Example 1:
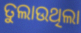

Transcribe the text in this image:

ତୁଲାଉଥିଲା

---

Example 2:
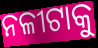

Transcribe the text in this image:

ନଳୀଟାକୁ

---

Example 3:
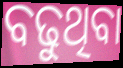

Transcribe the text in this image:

ବଢୁଥିବା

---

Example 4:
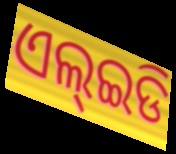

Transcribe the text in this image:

ଏଲ୍ଇଡି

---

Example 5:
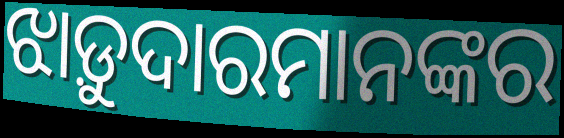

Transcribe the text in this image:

ଝାଡ଼ୁଦାରମାନଙ୍କର